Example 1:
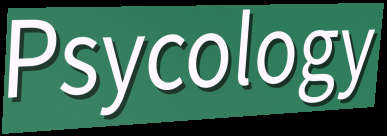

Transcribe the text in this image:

Psycology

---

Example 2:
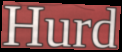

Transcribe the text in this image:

Hurd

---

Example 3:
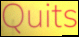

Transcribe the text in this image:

Quits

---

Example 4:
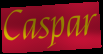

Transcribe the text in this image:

Caspar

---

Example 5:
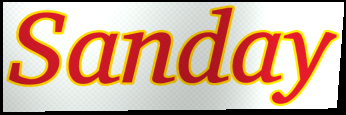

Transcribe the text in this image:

Sanday